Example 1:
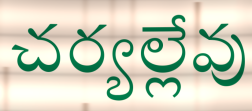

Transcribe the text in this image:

చర్యల్లేవు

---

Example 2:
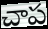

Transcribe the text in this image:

చాప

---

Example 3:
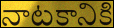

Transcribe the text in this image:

నాటకానికి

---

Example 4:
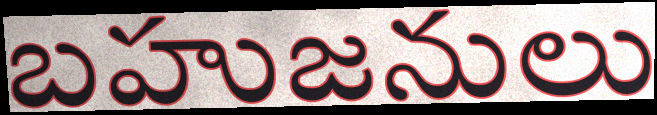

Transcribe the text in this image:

బహుజనులు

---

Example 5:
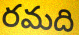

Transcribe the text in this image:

రమది